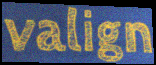
valign